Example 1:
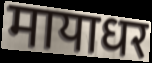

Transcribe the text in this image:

मायाधर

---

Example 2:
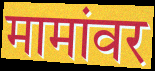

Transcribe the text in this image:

मामांवर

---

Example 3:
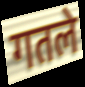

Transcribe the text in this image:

गतले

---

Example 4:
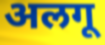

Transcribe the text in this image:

अलगू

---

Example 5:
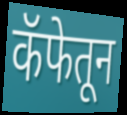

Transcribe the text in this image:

कॅफेतून